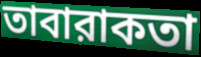
তাবারাকতা